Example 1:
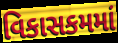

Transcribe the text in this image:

વિકાસકમમાં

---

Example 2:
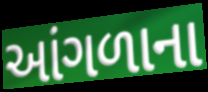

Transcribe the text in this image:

આંગળાના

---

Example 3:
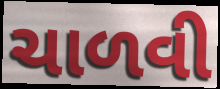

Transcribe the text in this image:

ચાળવી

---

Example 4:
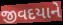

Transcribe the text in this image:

જીવદયાને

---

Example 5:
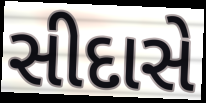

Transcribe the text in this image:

સીદાસે